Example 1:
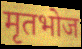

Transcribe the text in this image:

मृतभोज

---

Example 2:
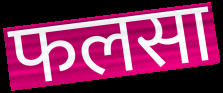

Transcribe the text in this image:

फलसा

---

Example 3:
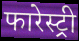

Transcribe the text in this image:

फारेस्ट्री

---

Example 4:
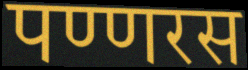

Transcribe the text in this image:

पण्णरस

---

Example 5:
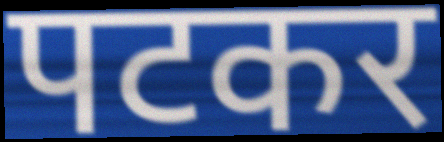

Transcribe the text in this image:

पटकर